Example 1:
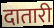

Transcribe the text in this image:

दातारी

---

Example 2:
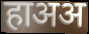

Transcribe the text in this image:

हाअअ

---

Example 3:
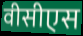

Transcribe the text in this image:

वीसीएस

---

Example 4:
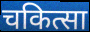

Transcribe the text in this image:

चकित्सा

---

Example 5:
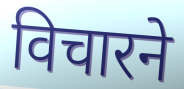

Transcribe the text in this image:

विचारने